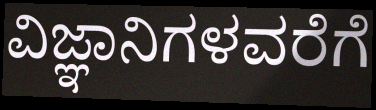
ವಿಜ್ಞಾನಿಗಳವರೆಗೆ